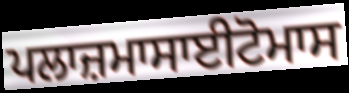
ਪਲਾਜ਼ਮਾਸਾਈਟੋਮਾਸ